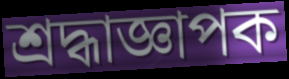
শ্রদ্ধাজ্ঞাপক